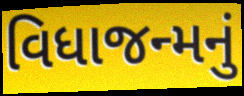
વિધાજન્મનું